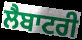
ਲੈਬਾਟਰੀ